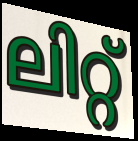
ലിറ്റ്